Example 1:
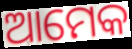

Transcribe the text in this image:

ଆମେକ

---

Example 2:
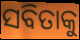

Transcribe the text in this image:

ସବିତାକୁ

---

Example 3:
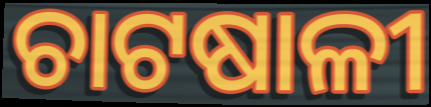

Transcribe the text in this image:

ଚାଟଷାଳୀ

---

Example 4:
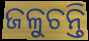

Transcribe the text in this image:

ଜଳୁଚନ୍ତି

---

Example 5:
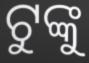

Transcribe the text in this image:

ଟୁଙ୍କୁ